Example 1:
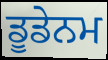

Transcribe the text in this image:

ਡੂਡੇਨਮ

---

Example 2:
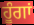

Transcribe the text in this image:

ਹੂੰਗਾਂ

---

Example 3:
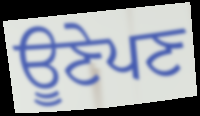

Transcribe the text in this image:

ਊਣੇਪਣ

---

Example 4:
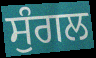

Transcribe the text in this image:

ਸੁੰਗਲ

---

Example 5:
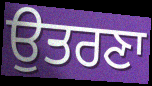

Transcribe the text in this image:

ਉਤਰਣਾ